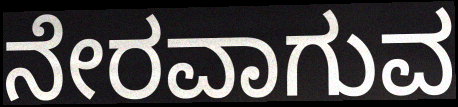
ನೇರವಾಗುವ